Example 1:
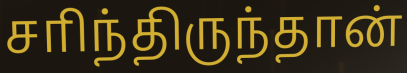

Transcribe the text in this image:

சரிந்திருந்தான்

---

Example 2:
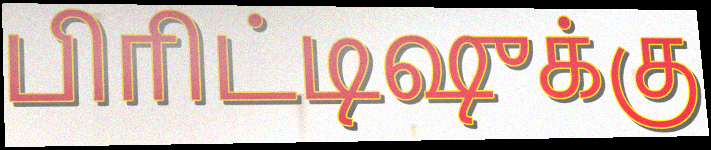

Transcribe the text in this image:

பிரிட்டிஷுக்கு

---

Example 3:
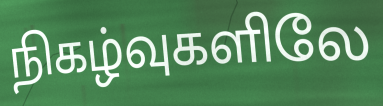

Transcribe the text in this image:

நிகழ்வுகளிலே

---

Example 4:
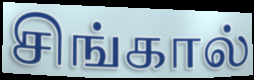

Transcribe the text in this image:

சிங்கால்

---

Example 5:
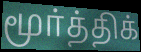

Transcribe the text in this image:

மூர்த்திக்